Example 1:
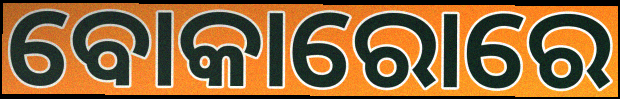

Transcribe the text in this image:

ବୋକାରୋରେ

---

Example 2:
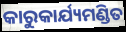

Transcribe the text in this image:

କାରୁକାର୍ଯ୍ୟମଣ୍ଡିତ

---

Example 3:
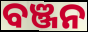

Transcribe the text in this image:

ବଞ୍ଜନ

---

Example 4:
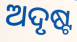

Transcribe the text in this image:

ଅଦୃଷ୍ଟ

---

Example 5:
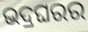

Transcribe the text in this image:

ଭଦ୍ରଘରର